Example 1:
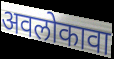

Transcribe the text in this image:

अवलोकावा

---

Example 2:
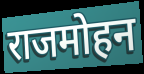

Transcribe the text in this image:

राजमोहन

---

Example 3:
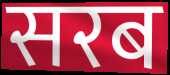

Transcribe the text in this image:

सरब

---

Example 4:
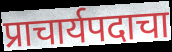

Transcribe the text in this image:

प्राचार्यपदाचा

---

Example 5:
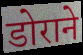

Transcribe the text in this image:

डोराने